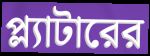
প্ল্যাটারের